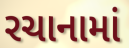
રચાનામાં